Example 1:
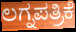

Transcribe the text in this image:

ಲಗ್ನಪತ್ರಿಕೆ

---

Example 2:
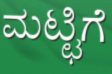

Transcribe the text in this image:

ಮಟ್ಟಿಗೆ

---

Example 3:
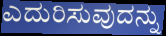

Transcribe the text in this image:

ಎದುರಿಸುವುದನ್ನು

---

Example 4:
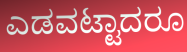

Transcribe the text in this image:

ಎಡವಟ್ಟಾದರೂ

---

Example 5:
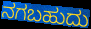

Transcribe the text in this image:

ನಗಬಹುದು